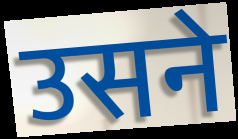
उसने